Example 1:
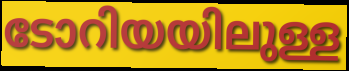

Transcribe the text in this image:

ടോറിയയിലുള്ള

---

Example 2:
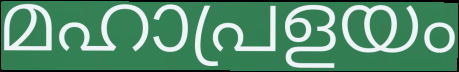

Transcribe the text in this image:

മഹാപ്രളയം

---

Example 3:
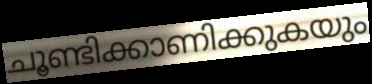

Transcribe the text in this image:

ചൂണ്ടിക്കാണിക്കുകയും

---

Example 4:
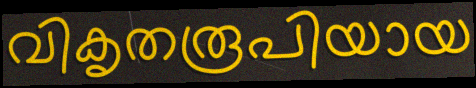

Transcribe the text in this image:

വികൃതരൂപിയായ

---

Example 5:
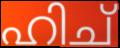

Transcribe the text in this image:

ഹിച്